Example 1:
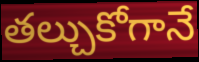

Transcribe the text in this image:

తల్చుకోగానే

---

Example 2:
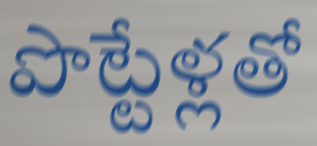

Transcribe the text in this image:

పొట్టేళ్లతో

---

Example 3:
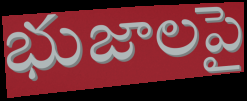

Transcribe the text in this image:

భుజాలపై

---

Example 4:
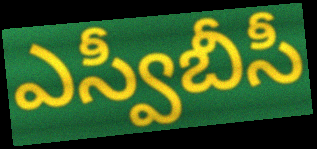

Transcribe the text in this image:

ఎస్వీబీసీ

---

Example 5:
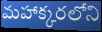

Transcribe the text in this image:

మహాక్కరలోని